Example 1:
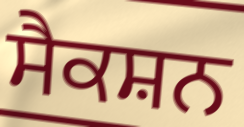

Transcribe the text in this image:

ਸੈਕਸ਼ਨ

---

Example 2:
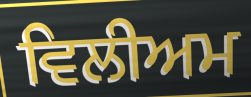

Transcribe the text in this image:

ਵਿਲੀਅਮ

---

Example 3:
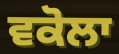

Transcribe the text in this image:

ਵਕੋਲਾ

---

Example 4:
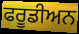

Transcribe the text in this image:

ਫਰੂਡੀਅਨ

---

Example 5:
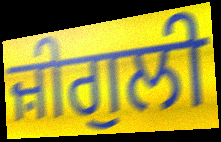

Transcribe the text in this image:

ਜ਼ੀਗੁਲੀ